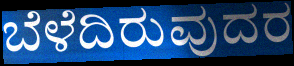
ಬೆಳೆದಿರುವುದರ